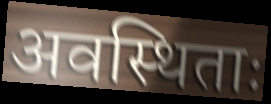
अवस्थिताः